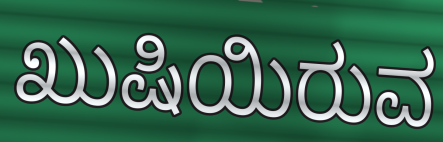
ಖುಷಿಯಿರುವ